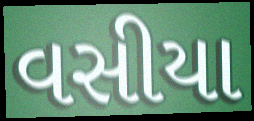
વસીયા